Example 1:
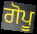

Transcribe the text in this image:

ਗੋਪੂ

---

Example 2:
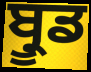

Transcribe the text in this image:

ਬ੍ਰੂਡ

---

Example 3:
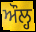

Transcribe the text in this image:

ਔਲ੍ਹ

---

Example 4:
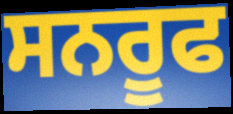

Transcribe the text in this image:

ਸਨਰੂਫ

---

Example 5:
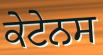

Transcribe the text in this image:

ਕੇਟੇਨਸ